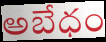
అబేధం